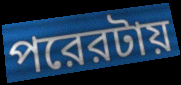
পরেরটায়